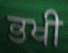
ਭਖੀ